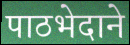
पाठभेदाने